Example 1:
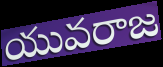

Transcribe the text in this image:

యువరాజ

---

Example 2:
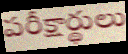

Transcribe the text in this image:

పరీక్షార్థులు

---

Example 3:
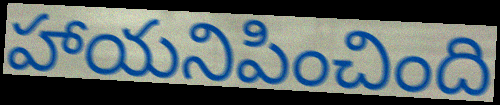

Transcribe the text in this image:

హాయనిపించింది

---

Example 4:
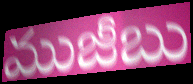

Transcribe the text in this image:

ముజీబు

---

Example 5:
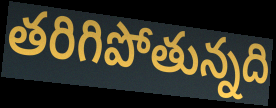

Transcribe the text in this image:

తరిగిపోతున్నది